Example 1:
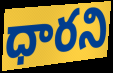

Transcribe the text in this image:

ధారని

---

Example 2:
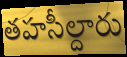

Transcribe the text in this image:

తహసీల్దారు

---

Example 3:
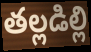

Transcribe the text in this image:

తల్లడిల్లి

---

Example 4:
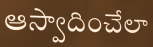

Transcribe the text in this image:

ఆస్వాదించేలా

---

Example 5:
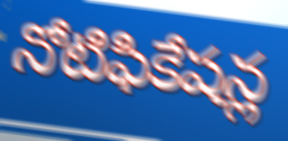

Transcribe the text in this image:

నోటిఫికేషన్ల